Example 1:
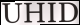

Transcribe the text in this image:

UHID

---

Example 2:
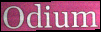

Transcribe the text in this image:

Odium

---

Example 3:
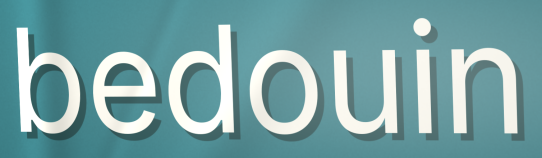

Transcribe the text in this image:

bedouin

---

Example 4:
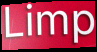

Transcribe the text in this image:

Limp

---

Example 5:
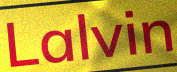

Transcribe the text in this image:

Lalvin